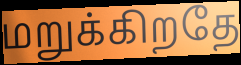
மறுக்கிறதே